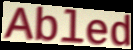
Abled